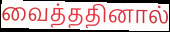
வைத்ததினால்